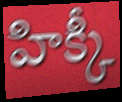
హిక్కీ